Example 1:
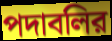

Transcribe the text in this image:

পদাবলির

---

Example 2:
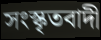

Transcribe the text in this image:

সংস্কৃতবাদী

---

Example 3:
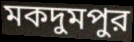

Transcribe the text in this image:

মকদুমপুর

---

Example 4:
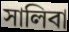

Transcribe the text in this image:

সালিবা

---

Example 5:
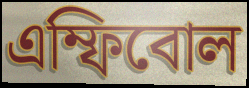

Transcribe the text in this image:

এম্ফিবোল